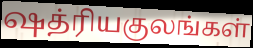
ஷத்ரியகுலங்கள்